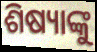
ଶିଷ୍ୟାଙ୍କୁ